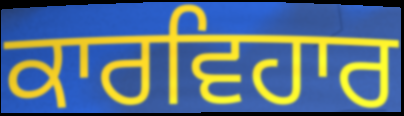
ਕਾਰਵਿਹਾਰ